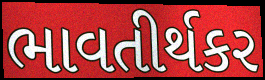
ભાવતીર્થકર